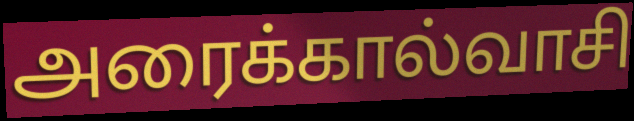
அரைக்கால்வாசி